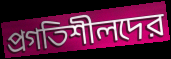
প্রগতিশীলদের